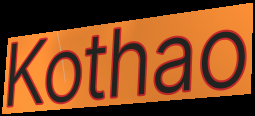
Kothao